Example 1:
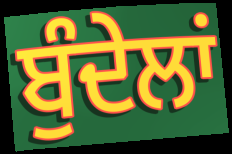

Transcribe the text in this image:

ਬੁੰਦੇਲਾਂ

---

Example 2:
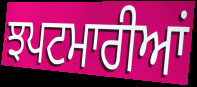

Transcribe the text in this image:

ਝਪਟਮਾਰੀਆਂ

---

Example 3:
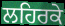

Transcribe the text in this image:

ਲਹਿਰਕੇ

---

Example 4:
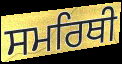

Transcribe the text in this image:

ਸਮਰਿਥੀ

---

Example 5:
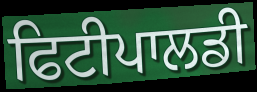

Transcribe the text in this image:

ਫਿਟੀਪਾਲਡੀ